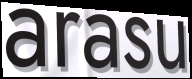
arasu